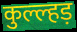
कुल्ल्हड़